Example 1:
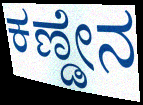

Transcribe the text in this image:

ಕಣ್ಡೇನ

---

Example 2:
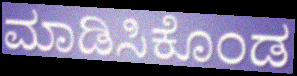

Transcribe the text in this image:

ಮಾಡಿಸಿಕೊಂಡ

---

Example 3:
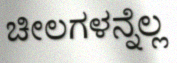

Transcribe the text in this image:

ಚೀಲಗಳನ್ನೆಲ್ಲ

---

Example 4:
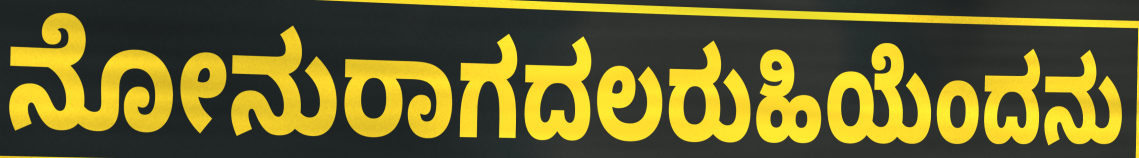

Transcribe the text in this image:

ನೋನುರಾಗದಲರುಹಿಯೆಂದನು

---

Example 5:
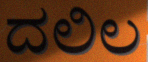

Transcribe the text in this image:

ದಲಿಲ